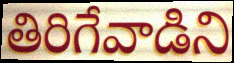
తిరిగేవాడిని